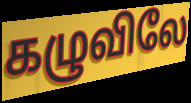
கழுவிலே